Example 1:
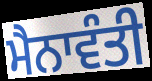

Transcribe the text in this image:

ਮੈਨਾਵੰਤੀ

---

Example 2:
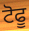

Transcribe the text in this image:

ਟੋਫੂ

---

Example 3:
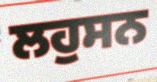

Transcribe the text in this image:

ਲਹੁਸਨ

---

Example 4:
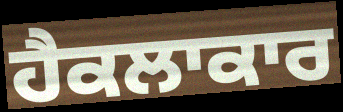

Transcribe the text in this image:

ਹੈਕਲਾਕਾਰ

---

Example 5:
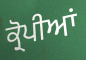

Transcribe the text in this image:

ਕ੍ਰੋਪੀਆਂ